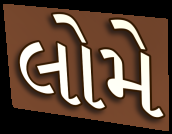
લોમે